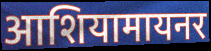
आशियामायनर